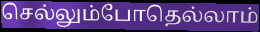
செல்லும்போதெல்லாம்